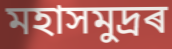
মহাসমুদ্ৰৰ